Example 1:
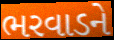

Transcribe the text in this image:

ભરવાડને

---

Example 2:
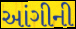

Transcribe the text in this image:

આંગીની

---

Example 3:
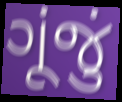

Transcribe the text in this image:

ગૂંજું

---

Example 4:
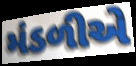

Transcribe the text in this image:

મંડળીએ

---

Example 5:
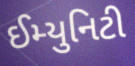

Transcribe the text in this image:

ઈમ્યુનિટી